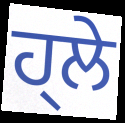
ਹ੍ਲੇ